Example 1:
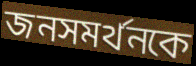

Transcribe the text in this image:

জনসমর্থনকে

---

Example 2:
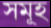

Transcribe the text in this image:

সমূহ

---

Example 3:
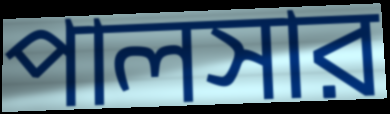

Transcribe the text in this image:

পালসার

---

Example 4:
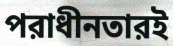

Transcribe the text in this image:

পরাধীনতারই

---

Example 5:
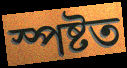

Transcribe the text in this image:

স্পষ্টত